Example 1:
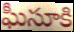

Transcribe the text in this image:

ఘీసూకి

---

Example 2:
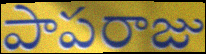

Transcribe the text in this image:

పాపరాజు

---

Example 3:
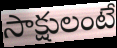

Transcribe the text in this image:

సాక్షులంటే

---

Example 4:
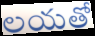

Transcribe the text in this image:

లయతో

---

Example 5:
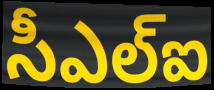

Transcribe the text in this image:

సీఎల్ఐ